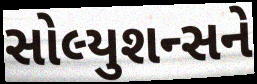
સોલ્યુશન્સને